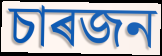
চাৰজন